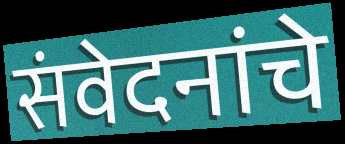
संवेदनांचे